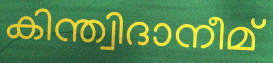
കിന്ത്വിദാനീമ്